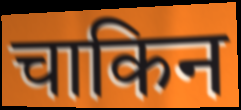
चाकिन